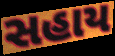
સહાય